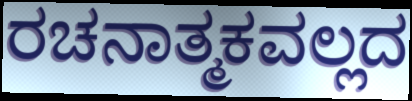
ರಚನಾತ್ಮಕವಲ್ಲದ